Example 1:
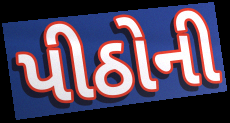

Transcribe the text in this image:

પીઠોની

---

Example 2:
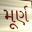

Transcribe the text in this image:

મૂર્ણ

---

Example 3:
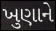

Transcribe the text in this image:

ખુણાને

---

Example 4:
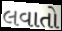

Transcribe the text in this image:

લવાતો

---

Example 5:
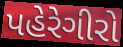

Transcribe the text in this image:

પહેરેગીરો